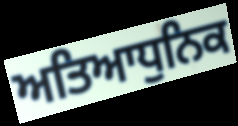
ਅਤਿਆਧੁਨਿਕ